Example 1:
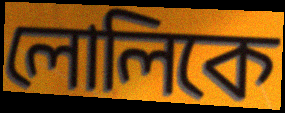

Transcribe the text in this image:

লোলিকে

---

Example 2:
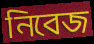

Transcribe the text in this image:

নিবেজ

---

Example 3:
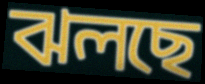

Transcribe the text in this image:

ঝলছে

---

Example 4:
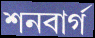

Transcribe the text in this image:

শনবার্গ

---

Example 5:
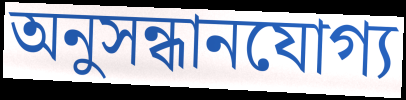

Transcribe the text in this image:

অনুসন্ধানযোগ্য